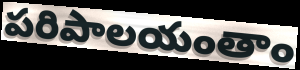
పరిపాలయంతాం